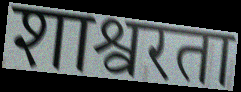
शाश्वरता